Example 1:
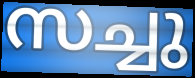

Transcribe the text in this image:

സച്ചു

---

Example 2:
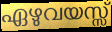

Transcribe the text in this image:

ഏഴുവയസ്സ്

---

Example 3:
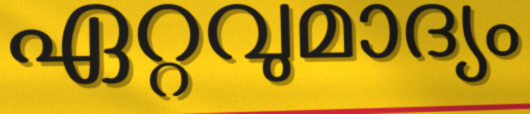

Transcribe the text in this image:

ഏറ്റവുമാദ്യം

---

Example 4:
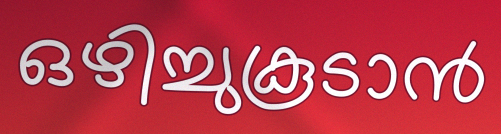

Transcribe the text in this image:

ഒഴിച്ചുകൂടാൻ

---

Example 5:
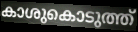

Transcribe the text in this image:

കാശുകൊടുത്ത്